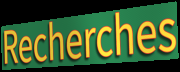
Recherches